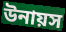
উনায়স